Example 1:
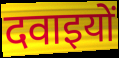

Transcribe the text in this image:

दवाइयों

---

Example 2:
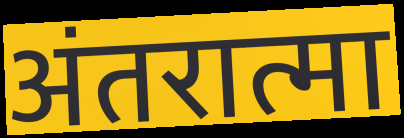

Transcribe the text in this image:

अंतरात्मा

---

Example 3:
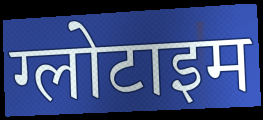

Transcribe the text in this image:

ग्लोटाइम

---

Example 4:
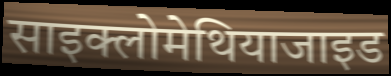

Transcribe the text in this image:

साइक्लोमेथियाजाइड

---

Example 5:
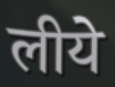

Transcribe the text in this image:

लीये